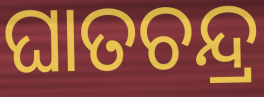
ଘାତଚନ୍ଦ୍ର